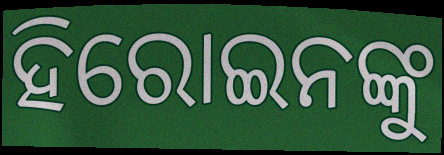
ହିରୋଇନଙ୍କୁ